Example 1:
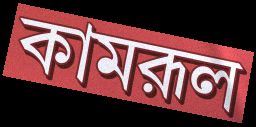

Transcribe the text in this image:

কামরূল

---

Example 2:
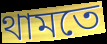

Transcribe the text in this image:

থামতে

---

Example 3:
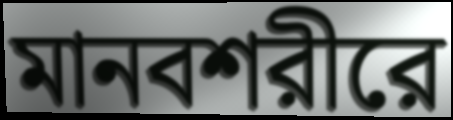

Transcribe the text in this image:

মানবশরীরে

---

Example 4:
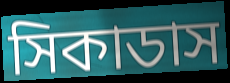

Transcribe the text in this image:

সিকাডাস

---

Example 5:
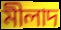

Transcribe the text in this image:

মীলাদ